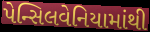
પેન્સિલવેનિયામાંથી